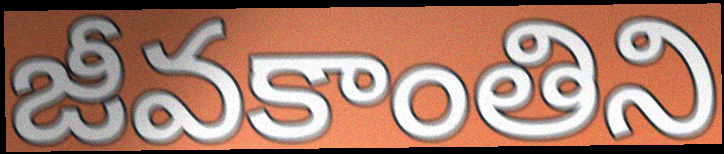
జీవకాంతిని